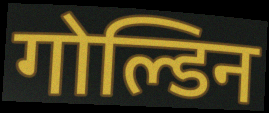
गोल्डिन